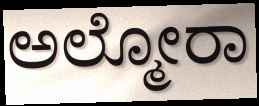
ಅಲ್ಮೋರಾ